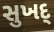
સુખદ્